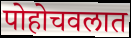
पोहोचवलात